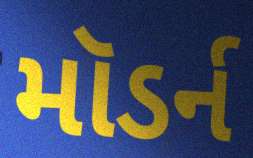
મૉડર્ન